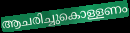
ആചരിച്ചുകൊള്ളണം